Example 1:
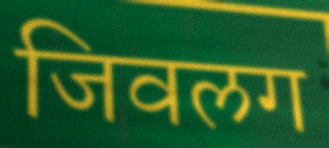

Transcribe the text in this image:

जिवलग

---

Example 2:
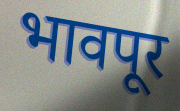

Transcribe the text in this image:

भावपूर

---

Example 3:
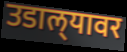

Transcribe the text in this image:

उडाल्यावर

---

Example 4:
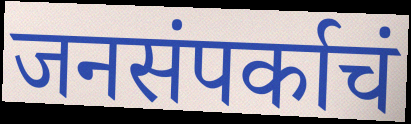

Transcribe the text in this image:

जनसंपर्काचं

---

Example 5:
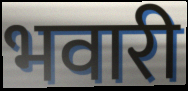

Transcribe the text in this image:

भवारी